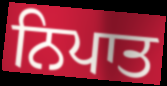
ਨਿਪਾਤ